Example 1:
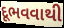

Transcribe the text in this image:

દૂભવવાથી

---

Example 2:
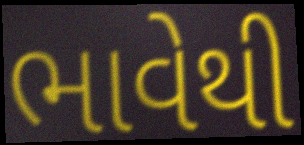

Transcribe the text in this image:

ભાવેથી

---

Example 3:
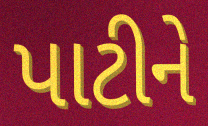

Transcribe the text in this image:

પાટીને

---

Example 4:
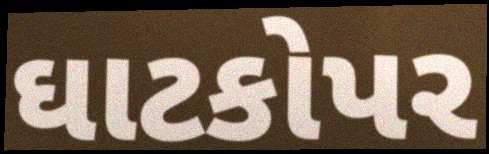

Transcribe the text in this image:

ઘાટકોપર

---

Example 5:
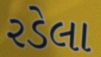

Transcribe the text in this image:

રડેલા